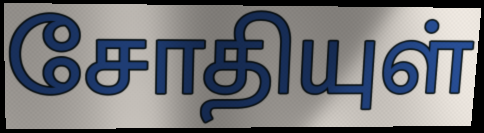
சோதியுள்